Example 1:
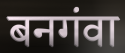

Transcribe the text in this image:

बनगंवा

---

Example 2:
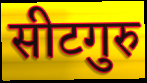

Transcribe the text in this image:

सीटगुरु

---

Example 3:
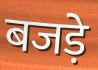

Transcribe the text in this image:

बजड़े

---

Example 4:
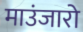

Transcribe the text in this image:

माउंजारो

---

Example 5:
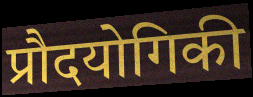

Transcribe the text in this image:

प्रौदयोगिकी